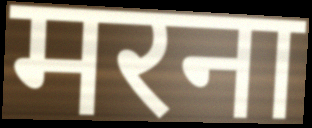
मरना